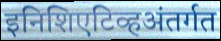
इनिशिएटिव्हअंतर्गत